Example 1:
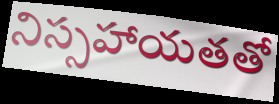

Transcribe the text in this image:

నిస్సహాయతతో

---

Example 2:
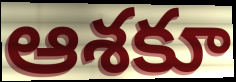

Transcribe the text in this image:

ఆశకూ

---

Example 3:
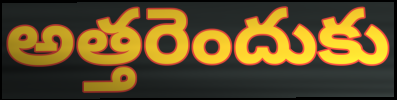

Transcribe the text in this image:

అత్తరెందుకు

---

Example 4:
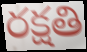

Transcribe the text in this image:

రక్షతి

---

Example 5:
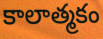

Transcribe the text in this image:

కాలాత్మకం